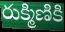
రుక్మిణికి